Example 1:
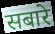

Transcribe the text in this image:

सबारे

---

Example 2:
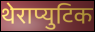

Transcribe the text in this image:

थेराप्युटिक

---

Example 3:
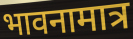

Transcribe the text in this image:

भावनामात्र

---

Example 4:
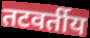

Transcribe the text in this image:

तटवर्तीय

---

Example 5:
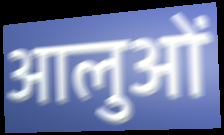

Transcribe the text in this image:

आलुओं